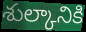
శుల్కానికి